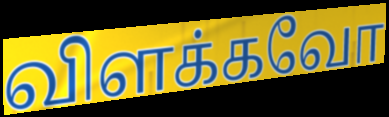
விளக்கவோ